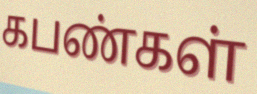
கபண்கள்